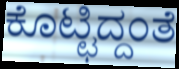
ಕೊಟ್ಟಿದ್ದಂತೆ